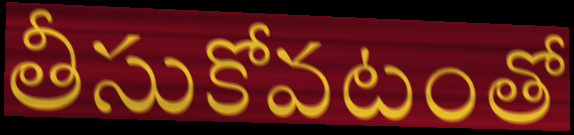
తీసుకోవటంతో